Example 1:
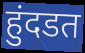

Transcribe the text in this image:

हुंदडत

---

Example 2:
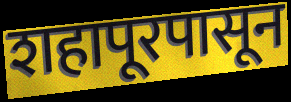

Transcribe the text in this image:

शहापूरपासून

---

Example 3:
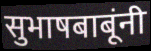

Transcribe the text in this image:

सुभाषबाबूंनी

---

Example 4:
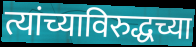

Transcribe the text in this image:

त्यांच्याविरुद्धच्या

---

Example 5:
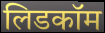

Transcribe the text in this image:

लिडकॉम